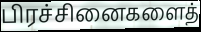
பிரச்சினைகளைத்